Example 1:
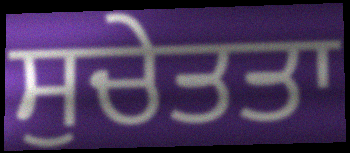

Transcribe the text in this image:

ਸੁਚੇਤਤਾ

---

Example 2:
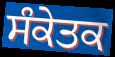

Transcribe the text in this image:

ਸੰਕੇਤਕ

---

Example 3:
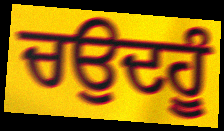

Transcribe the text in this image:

ਚਉਦਹੂੰ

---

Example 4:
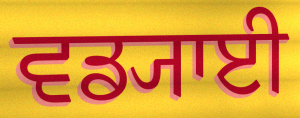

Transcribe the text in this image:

ਵਡ੍ਯਾਈ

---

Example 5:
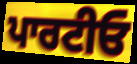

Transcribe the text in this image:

ਪਾਰਟੀਓ